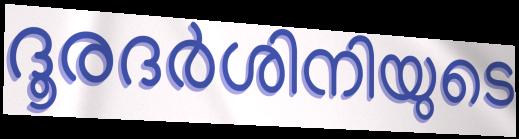
ദൂരദർശിനിയുടെ